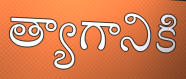
త్యాగానికి